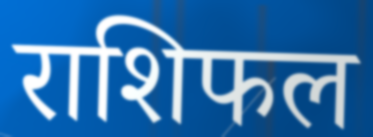
राशिफल